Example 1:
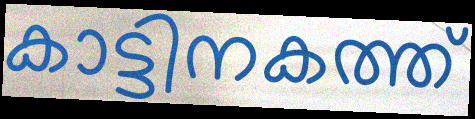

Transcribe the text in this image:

കാട്ടിനകത്ത്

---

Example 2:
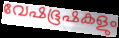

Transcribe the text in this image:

വേഷഭൂഷകളും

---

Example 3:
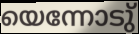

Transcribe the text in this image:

യെന്നോടു്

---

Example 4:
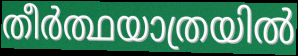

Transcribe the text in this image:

തീർത്ഥയാത്രയിൽ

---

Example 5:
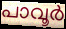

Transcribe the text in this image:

പാവൂർ